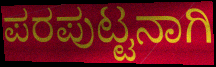
ಪರಪುಟ್ಟನಾಗಿ